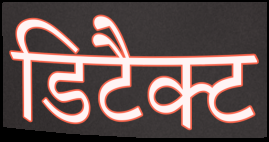
डिटैक्ट